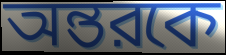
অন্তরকে